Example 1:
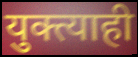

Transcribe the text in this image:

युक्त्याही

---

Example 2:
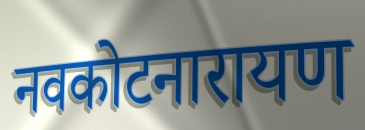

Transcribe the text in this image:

नवकोटनारायण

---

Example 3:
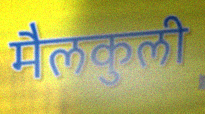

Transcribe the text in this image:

मैलकुली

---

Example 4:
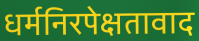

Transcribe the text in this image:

धर्मनिरपेक्षतावाद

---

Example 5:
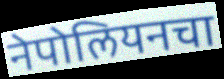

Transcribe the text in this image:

नेपोलियनचा